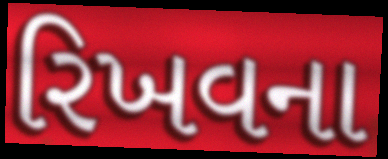
રિખવના